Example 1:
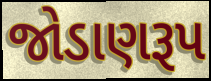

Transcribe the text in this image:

જોડાણરૂપ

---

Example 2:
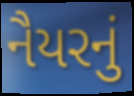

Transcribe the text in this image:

નૈયરનું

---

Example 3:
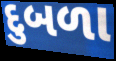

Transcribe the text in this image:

દુબળા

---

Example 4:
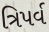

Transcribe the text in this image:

ત્રિપર્વ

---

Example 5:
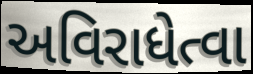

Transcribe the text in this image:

અવિરાધેત્વા